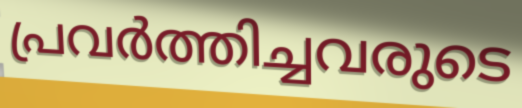
പ്രവർത്തിച്ചവരുടെ